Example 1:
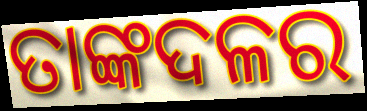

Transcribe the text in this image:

ତାଙ୍କଦଳର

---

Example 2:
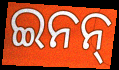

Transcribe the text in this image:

ଇନନ୍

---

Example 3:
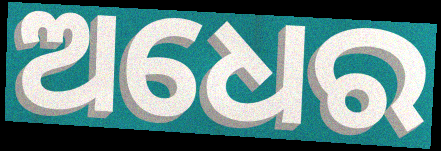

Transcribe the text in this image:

ଅଧେର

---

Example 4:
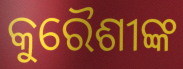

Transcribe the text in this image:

କୁରୈଶୀଙ୍କ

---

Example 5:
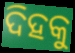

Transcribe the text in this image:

ଦିହକୁ